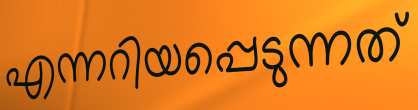
എന്നറിയപ്പെടുന്നത്